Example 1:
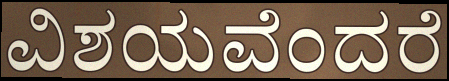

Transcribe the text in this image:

ವಿಶಯವೆಂದರೆ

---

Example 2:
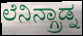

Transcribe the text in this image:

ಲೆನಿನ್ಗ್ರಾಡ್ನ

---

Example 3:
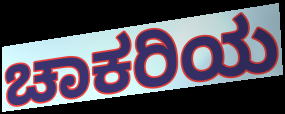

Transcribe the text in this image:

ಚಾಕರಿಯ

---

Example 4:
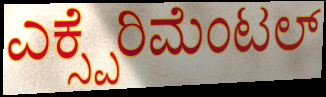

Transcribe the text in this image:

ಎಕ್ಸ್ಪೆರಿಮೆಂಟಲ್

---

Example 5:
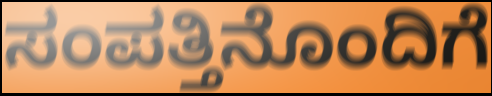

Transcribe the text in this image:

ಸಂಪತ್ತಿನೊಂದಿಗೆ